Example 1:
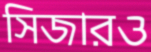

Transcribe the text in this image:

সিজারও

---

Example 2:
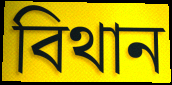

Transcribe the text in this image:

বিথান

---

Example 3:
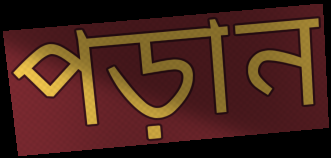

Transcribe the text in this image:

পড়ান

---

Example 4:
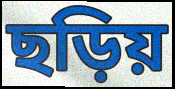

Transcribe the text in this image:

ছড়িয়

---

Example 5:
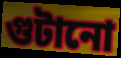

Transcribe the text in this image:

গুটানো